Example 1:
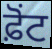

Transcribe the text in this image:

ਫ਼ੋਂਟ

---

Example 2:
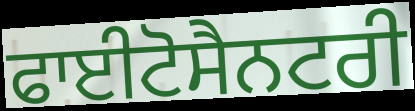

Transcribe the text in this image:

ਫਾਈਟੋਸੈਨਟਰੀ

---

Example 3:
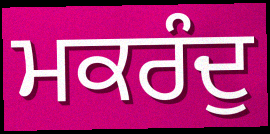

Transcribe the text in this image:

ਮਕਰੰਦੁ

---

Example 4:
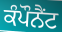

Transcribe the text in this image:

ਕੰਪੌਨੈਂਟ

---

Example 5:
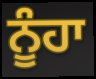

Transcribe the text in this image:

ਨੂੰਹਾ